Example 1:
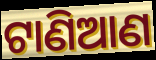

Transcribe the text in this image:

ଟାଣିଆଣ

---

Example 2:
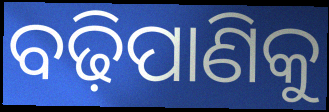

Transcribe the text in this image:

ବଢ଼ିପାଣିକୁ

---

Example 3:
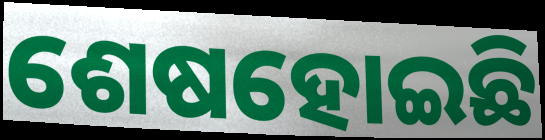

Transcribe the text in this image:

ଶେଷହୋଇଛି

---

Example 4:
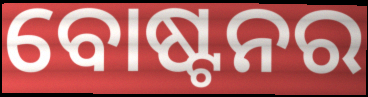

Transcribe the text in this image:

ବୋଷ୍ଟନର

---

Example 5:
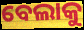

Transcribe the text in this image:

ବେଲାକୁ